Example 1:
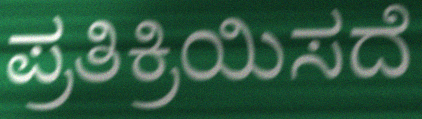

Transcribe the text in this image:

ಪ್ರತಿಕ್ರಿಯಿಸದೆ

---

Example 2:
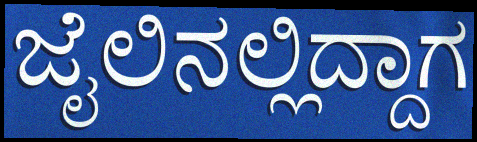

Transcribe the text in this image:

ಜೈಲಿನಲ್ಲಿದ್ದಾಗ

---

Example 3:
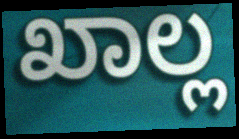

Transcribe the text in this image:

ಖಾಲ್ಲ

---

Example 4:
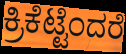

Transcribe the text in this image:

ಕ್ರಿಕೆಟ್ಟೆಂದರೆ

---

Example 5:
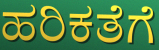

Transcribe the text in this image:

ಹರಿಕತೆಗೆ